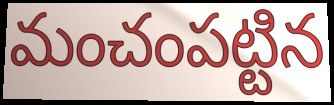
మంచంపట్టిన